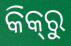
କିକ୍‍ରୁ